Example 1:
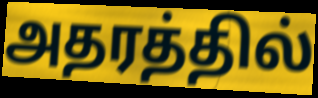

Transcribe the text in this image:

அதரத்தில்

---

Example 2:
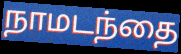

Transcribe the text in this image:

நாமடந்தை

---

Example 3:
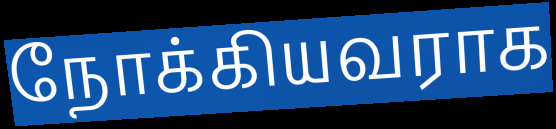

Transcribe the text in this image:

நோக்கியவராக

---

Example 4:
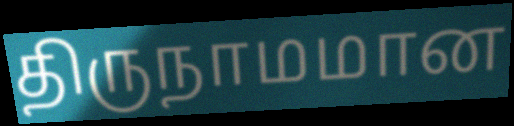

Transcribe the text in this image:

திருநாமமான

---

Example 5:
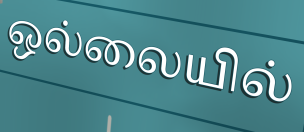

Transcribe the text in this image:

ஒல்லையில்